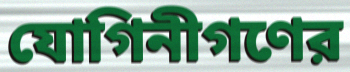
যোগিনীগণের